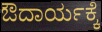
ಔದಾರ್ಯಕ್ಕೆ